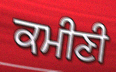
ਕਮੀਣੀ